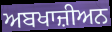
ਅਬਖਾਜ਼ੀਅਨ